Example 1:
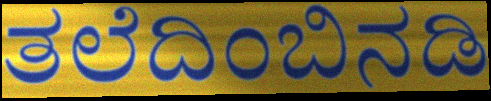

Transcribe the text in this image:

ತಲೆದಿಂಬಿನಡಿ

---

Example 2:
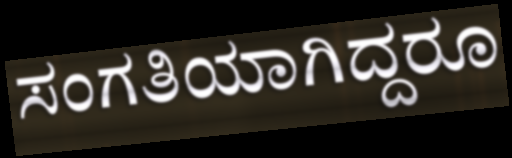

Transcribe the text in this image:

ಸಂಗತಿಯಾಗಿದ್ದರೂ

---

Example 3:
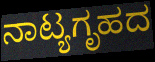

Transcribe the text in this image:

ನಾಟ್ಯಗೃಹದ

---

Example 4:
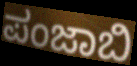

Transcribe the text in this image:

ಪಂಜಾಬಿ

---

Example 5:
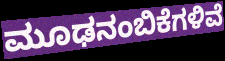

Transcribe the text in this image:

ಮೂಢನಂಬಿಕೆಗಳಿವೆ